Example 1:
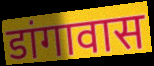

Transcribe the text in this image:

डांगावास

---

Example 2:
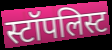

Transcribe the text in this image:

स्टॉपलिस्ट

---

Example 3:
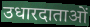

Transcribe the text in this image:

उधारदाताओं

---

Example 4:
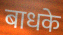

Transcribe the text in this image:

बाधके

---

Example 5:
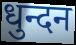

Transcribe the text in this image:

धुन्दन